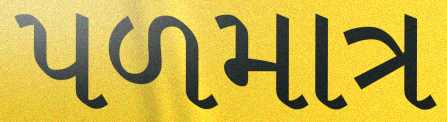
પળમાત્ર